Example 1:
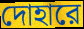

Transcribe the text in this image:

দোহারে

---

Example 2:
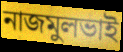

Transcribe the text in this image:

নাজমুলভাই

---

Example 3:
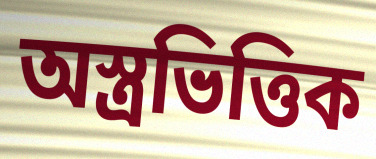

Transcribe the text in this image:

অস্ত্রভিত্তিক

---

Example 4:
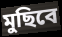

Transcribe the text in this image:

মুছিবে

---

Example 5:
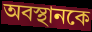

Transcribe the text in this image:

অবস্থানকে